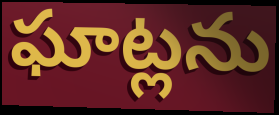
ఘాట్లను